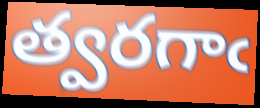
త్వరగాఁ